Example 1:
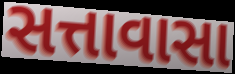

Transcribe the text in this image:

સત્તાવાસા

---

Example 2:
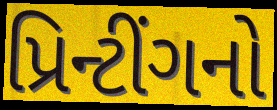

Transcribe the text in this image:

પ્રિન્ટીંગનો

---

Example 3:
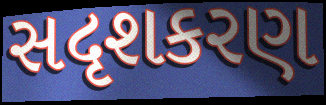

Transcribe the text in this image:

સદૃશકરણ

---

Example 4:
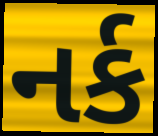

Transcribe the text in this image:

નર્ક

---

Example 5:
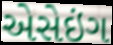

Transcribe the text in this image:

એસેઇંગ